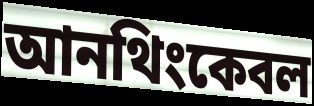
আনথিংকেবল